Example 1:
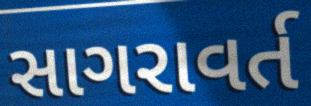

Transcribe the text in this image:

સાગરાવર્ત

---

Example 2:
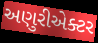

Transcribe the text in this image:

અણુરીએક્ટર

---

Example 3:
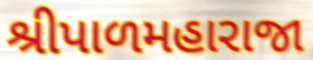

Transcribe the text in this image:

શ્રીપાળમહારાજા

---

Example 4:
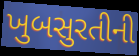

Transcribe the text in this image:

ખુબસુરતીની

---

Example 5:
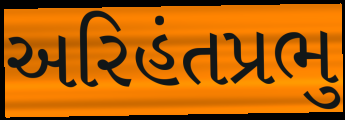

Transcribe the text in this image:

અરિહંતપ્રભુ